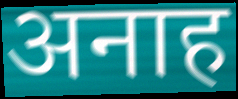
अनाह